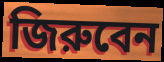
জিরুবেন